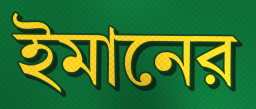
ইমানের